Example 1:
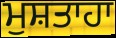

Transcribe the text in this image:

ਮੁਸ਼ਤਾਹਾ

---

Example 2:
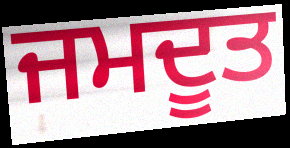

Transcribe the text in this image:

ਜਮਦੂਤ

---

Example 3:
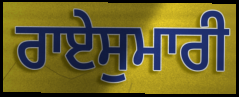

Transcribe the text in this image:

ਰਾਏਸੁਮਾਰੀ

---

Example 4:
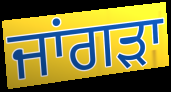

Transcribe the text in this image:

ਜਾਂਗੜਾ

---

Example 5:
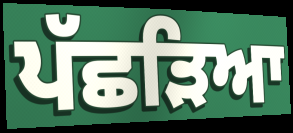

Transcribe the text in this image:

ਪੱਛੜਿਆ